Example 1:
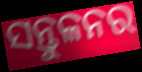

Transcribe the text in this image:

ସନ୍ତୁଳନର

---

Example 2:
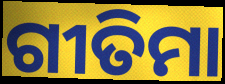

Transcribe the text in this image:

ଗୀତିମା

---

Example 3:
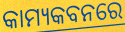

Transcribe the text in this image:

କାମ୍ୟକବନରେ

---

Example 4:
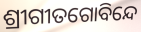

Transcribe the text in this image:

ଶ୍ରୀଗୀତଗୋବିନ୍ଦେ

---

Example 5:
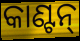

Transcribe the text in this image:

କାଣ୍ଟନ୍